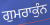
ਗੁਮਰਾਕੁੰਨ